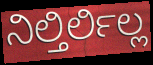
ನಿಲ್ತಿರ್ಲಿಲ್ಲ